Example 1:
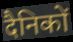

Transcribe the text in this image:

दैनिकों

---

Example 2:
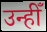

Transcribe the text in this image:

उन्हीँ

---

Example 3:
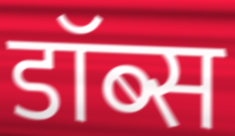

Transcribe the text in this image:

डॉब्स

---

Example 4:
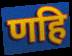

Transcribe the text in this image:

णहि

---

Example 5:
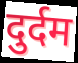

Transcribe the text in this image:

दुर्दम